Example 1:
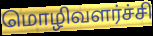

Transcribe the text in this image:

மொழிவளர்ச்சி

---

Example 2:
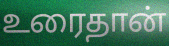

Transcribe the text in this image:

உரைதான்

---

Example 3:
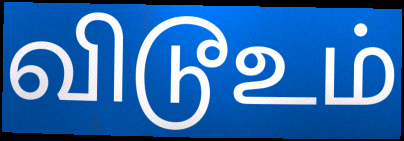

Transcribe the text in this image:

விடூஉம்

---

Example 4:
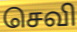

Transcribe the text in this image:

செவி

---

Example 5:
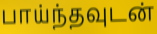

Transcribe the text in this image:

பாய்ந்தவுடன்